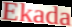
Ekada